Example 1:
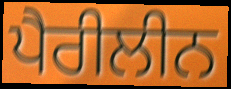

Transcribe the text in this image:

ਪੈਰੀਲੀਨ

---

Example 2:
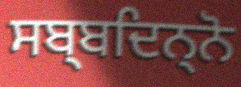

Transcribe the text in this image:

ਸਬ੍ਬਦਿਨ੍ਨੋ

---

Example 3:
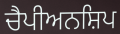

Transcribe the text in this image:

ਚੈਪੀਅਨਸ਼ਿਪ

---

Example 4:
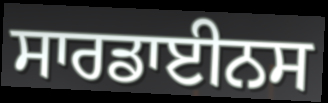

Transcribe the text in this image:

ਸਾਰਡਾਈਨਸ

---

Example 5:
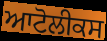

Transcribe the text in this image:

ਆਟੋਲੀਕਸ